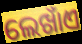
ଲେଖାଁଏ